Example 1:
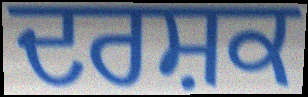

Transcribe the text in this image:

ਦਰਸ਼ਕ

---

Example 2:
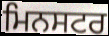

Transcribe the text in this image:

ਮਿਨਸਟਰ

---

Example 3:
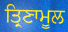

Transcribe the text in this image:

ਤ੍ਰਿਣਾਮੂਲ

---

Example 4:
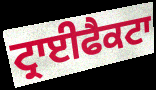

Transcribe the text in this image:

ਟ੍ਰਾਈਫੈਕਟਾ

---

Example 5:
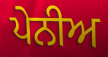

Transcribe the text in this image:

ਪੇਨੀਅ